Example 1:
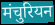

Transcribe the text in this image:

मंचुरियन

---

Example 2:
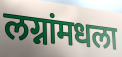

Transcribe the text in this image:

लग्नांमधला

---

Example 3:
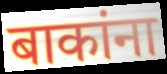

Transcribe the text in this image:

बाकांना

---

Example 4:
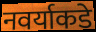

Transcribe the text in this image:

नवर्याकडे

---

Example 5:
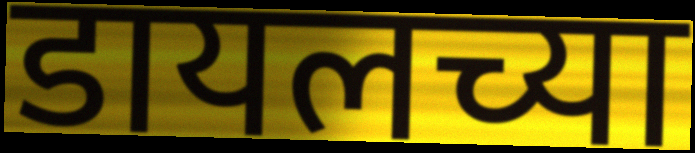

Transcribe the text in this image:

डायलच्या